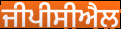
ਜੀਪੀਸੀਐਲ